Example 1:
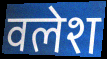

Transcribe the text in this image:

वलेश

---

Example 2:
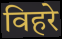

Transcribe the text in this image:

विहरे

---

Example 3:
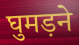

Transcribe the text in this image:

घुमड़ने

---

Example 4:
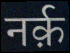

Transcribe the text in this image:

नर्क़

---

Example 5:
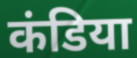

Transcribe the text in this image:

कंडिया